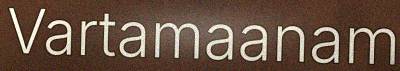
Vartamaanam